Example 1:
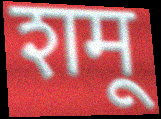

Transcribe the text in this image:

शमू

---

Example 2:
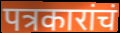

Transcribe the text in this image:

पत्रकारांचं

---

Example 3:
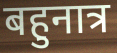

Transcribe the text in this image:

बहुनात्र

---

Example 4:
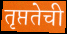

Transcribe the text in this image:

तृप्ततेची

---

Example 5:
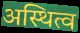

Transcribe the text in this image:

अस्थित्व